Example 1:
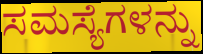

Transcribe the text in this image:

ಸಮಸ್ಯೆಗಳನ್ನು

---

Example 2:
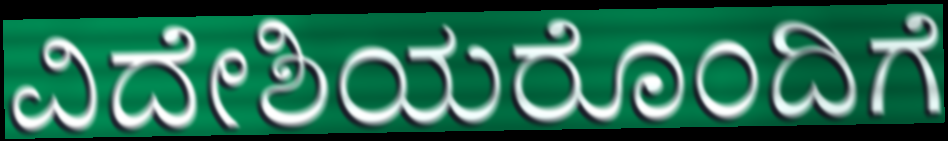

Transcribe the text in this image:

ವಿದೇಶಿಯರೊಂದಿಗೆ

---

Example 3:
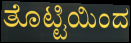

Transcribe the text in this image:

ತೊಟ್ಟಿಯಿಂದ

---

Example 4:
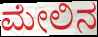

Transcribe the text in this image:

ಮೇಲಿನ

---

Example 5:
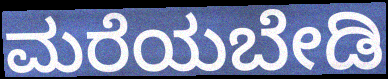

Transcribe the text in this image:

ಮರೆಯಬೇಡಿ